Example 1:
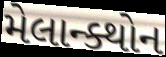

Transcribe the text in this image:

મેલાન્ક્થોન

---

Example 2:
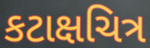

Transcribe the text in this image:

કટાક્ષચિત્ર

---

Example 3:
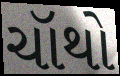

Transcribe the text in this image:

ચૉથો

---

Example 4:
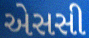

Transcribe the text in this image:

એસસી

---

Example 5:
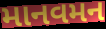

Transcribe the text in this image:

માનવમન